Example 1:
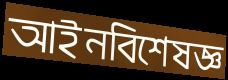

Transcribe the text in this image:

আইনবিশেষজ্ঞ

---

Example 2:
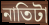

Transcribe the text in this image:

নাতিটা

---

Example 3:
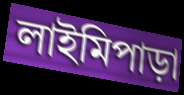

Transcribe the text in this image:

লাইমিপাড়া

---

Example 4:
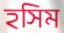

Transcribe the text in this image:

হসিম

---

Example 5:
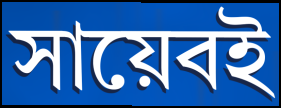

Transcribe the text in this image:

সায়েবই